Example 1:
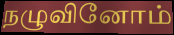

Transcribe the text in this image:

நழுவினோம்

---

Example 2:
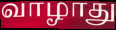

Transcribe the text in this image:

வாழாது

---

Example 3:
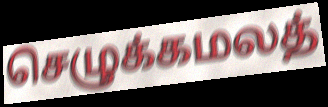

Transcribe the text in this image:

செழுக்கமலத்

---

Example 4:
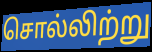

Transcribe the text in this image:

சொல்லிற்று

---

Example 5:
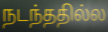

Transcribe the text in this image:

நடந்ததில்ல